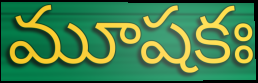
మూషకః